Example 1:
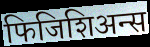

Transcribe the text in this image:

फिजिशिअन्स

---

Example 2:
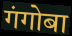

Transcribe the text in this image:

गंगोबा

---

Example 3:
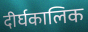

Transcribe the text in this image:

दीर्घकालिक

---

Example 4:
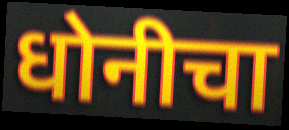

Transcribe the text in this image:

धोनीचा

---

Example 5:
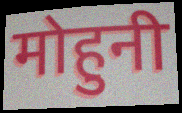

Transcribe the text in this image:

मोहुनी